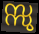
സ്സു